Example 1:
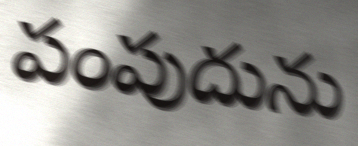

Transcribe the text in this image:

పంపుదును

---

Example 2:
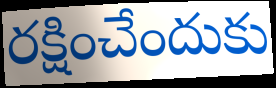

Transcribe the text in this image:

రక్షించేందుకు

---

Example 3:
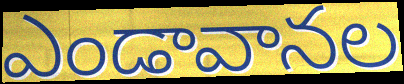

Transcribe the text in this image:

ఎండావానల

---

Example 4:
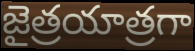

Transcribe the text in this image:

జైత్రయాత్రగా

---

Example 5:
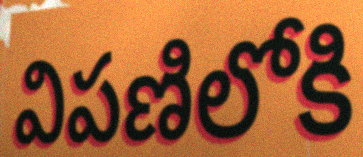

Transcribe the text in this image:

విపణిలోకి